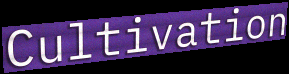
Cultivation